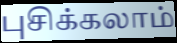
புசிக்கலாம்